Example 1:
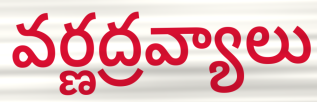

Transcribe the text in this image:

వర్ణద్రవ్యాలు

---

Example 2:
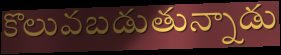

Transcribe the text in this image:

కొలువబడుతున్నాడు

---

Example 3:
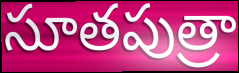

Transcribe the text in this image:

సూతపుత్రా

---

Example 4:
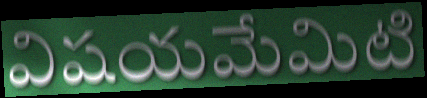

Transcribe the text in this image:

విషయమేమిటి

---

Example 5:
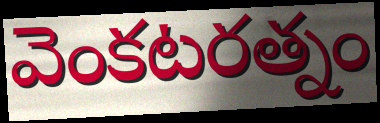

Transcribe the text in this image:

వెంకటరత్నం